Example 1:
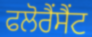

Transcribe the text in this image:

ਫਲੋਰੈਂਸੈਂਟ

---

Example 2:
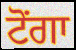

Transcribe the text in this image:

ਟੋਂਗਾ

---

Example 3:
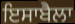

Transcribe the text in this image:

ਇਸਾਬੈਲਾ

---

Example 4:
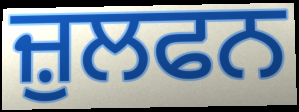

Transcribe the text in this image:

ਜ਼ੁਲਫਨ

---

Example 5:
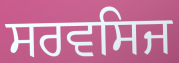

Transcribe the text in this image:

ਸਰਵਸਿਜ